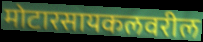
मोटारसायकलवरील